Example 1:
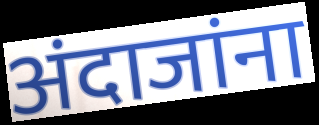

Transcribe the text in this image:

अंदाजांना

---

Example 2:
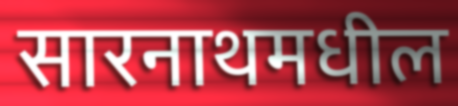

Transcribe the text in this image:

सारनाथमधील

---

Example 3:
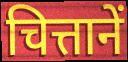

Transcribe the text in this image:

चित्तानें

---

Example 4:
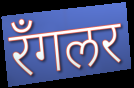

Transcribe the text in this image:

रॅंगलर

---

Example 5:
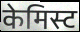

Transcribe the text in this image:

केमिस्ट